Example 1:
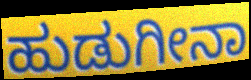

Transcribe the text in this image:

ಹುಡುಗೀನಾ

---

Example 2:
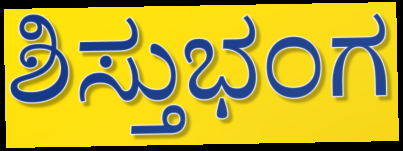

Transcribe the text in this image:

ಶಿಸ್ತುಭಂಗ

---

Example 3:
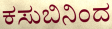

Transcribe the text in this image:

ಕಸುಬಿನಿಂದ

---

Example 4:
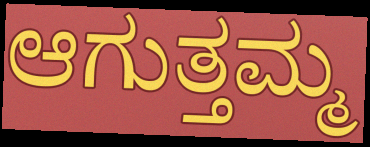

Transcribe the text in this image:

ಆಗುತ್ತಮ್ಮ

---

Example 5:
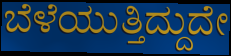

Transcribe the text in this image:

ಬೆಳೆಯುತ್ತಿದ್ದುದೇ